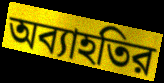
অব্যাহতির